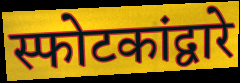
स्फोटकांद्वारे